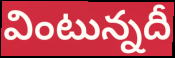
వింటున్నదీ